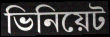
ভিনিয়েট